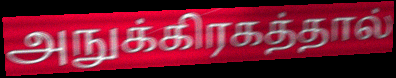
அநுக்கிரகத்தால்